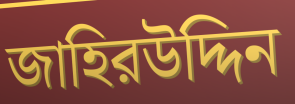
জাহিরউদ্দিন